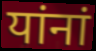
यांनां